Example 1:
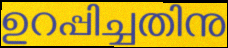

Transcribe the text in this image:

ഉറപ്പിച്ചതിനു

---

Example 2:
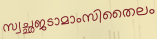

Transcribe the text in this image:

സ്വച്ഛജടാമാംസിതൈലം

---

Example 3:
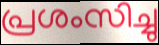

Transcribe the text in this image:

പ്രശംസിച്ചു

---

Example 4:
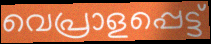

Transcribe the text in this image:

വെപ്രാളപ്പെട്ട്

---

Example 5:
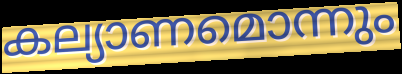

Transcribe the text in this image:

കല്യാണമൊന്നും